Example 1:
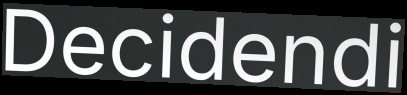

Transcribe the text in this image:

Decidendi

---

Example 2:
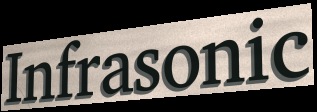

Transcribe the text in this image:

Infrasonic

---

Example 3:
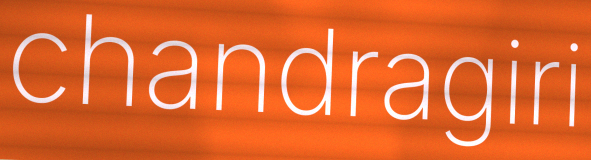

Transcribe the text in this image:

chandragiri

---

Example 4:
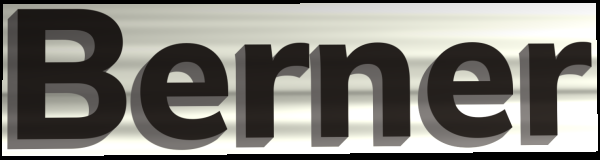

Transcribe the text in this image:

Berner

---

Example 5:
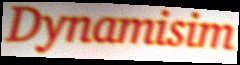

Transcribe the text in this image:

Dynamisim